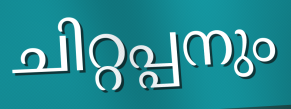
ചിറ്റപ്പനും